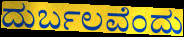
ದುರ್ಬಲವೆಂದು